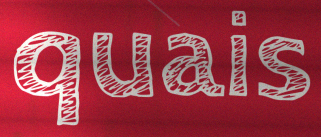
quais